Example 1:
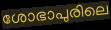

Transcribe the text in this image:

ശോഭാപുരിലെ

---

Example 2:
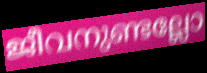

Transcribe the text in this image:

ജീവനുണ്ടല്ലോ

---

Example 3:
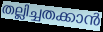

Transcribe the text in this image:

തല്ലിച്ചതക്കാൻ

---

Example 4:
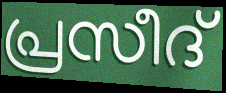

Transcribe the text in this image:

പ്രസീദ്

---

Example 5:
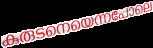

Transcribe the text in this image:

കുരുടനെയെന്നപോലെ